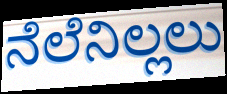
ನೆಲೆನಿಲ್ಲಲು